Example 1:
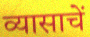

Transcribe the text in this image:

व्यासाचें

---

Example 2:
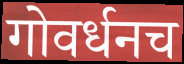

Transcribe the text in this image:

गोवर्धनच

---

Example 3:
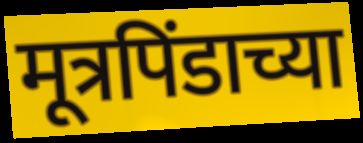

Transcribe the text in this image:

मूत्रपिंडाच्या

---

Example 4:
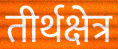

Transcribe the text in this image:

तीर्थक्षेत्र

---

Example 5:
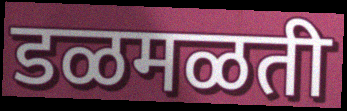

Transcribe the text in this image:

डळमळती